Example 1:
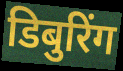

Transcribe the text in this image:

डिबुरिंग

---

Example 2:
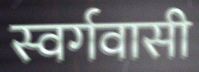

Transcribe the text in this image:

स्‍वर्गवासी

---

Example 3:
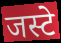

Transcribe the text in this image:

जस्टे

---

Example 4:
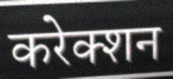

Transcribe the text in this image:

करेक्शन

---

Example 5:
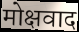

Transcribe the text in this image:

मोक्षवाद